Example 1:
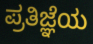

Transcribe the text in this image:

ಪ್ರತಿಜ್ಞೆಯ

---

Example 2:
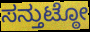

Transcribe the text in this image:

ಸನ್ತುಟ್ಠೋ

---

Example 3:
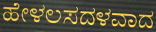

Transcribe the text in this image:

ಹೇಳಲಸದಳವಾದ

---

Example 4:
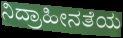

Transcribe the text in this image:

ನಿದ್ರಾಹೀನತೆಯ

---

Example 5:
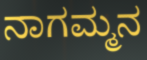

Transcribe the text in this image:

ನಾಗಮ್ಮನ